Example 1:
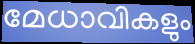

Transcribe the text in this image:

മേധാവികളും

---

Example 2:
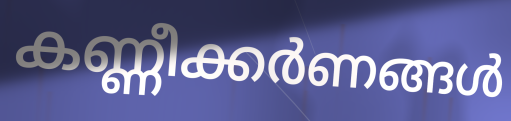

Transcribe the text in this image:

കണ്ണീക്കർണങ്ങൾ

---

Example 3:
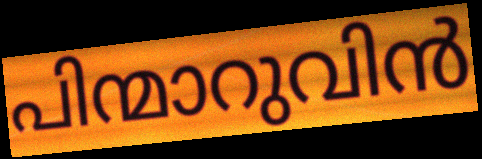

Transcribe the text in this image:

പിന്മാറുവിൻ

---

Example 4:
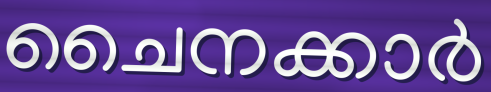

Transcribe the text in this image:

ചൈനക്കാർ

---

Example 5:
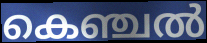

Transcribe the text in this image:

കെഞ്ചൽ